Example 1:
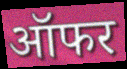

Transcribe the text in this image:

ऑफर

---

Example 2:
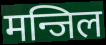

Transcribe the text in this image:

मन्जिल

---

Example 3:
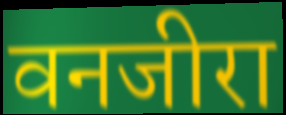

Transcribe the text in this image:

वनजीरा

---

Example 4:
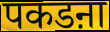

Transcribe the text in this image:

पकडऩा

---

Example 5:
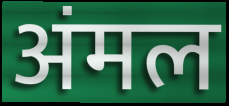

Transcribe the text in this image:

अंमल